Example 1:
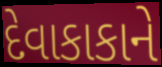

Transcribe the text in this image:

દેવાકાકાને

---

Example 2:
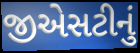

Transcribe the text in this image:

જીએસટીનું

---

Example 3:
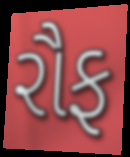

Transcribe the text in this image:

રૌફ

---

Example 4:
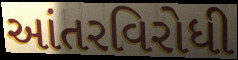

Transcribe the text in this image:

આંતરવિરોધી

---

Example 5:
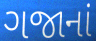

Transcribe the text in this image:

ગજાનાં